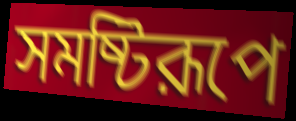
সমষ্টিরূপে